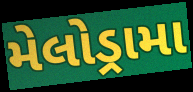
મેલોડ્રામા